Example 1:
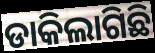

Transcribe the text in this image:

ଡାକିଲାଗିଛି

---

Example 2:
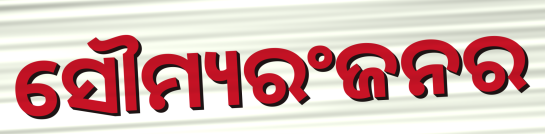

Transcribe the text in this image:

ସୌମ୍ୟରଂଜନର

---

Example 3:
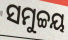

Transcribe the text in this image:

ସମୁଚ୍ଚୟ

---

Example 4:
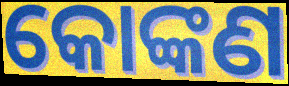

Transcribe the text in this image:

କୋଙ୍କଣ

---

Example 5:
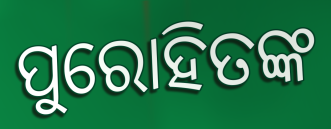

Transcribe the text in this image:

ପୁରୋହିତଙ୍କ